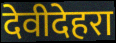
देवीदेहरा